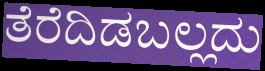
ತೆರೆದಿಡಬಲ್ಲದು